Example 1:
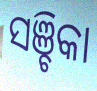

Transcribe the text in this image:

ସଞ୍ଚିକା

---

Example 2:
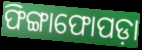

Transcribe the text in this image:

ଫିଙ୍ଗାଫୋପଡ଼ା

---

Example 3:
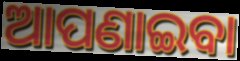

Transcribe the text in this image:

ଆପଣାଇବା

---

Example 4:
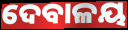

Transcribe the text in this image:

ଦେବାଳୟ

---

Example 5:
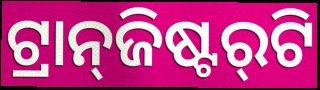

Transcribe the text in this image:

ଟ୍ରାନ୍‌ଜିଷ୍ଟର୍‌ଟି